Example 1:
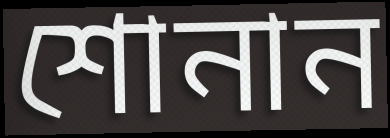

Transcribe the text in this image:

শোনান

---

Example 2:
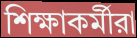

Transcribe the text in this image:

শিক্ষাকর্মীরা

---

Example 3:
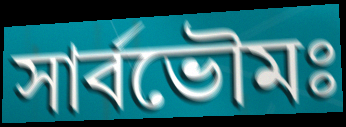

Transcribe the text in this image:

সার্বভৌমঃ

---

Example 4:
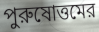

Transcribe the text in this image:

পুরুষোত্তমের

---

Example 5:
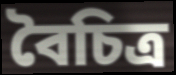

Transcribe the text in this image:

বৈচিত্র